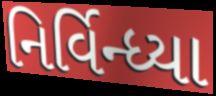
નિર્વિન્ધ્યા